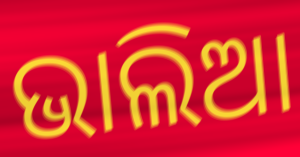
ଭାଲିଆ